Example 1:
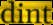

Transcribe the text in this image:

dint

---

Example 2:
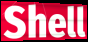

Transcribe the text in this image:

Shell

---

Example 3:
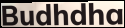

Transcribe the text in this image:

Budhdha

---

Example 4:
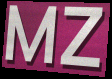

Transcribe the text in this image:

MZ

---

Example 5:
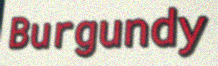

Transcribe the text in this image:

Burgundy